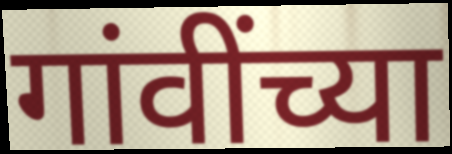
गांवींच्या